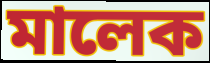
মালেক